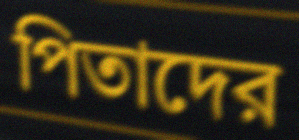
পিতাদের